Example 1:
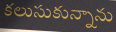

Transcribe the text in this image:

కలుసుకున్నాను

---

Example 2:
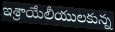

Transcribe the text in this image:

ఇశ్రాయేలీయులకున్న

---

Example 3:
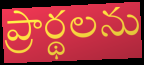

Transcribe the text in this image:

ప్రార్థలను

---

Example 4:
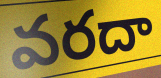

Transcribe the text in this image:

వరదా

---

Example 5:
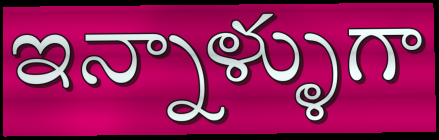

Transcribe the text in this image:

ఇన్నాళ్ళుగా